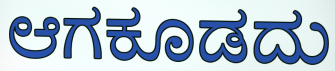
ಆಗಕೂಡದು